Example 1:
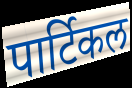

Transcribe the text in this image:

पार्टिकल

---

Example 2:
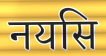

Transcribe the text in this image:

नयसि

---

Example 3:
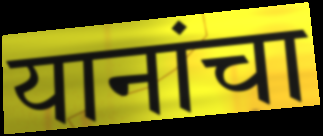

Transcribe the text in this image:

यानांचा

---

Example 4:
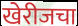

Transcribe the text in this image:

खेरीजचा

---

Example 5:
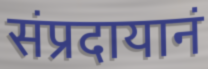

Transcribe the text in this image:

संप्रदायानं